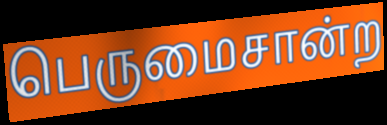
பெருமைசான்ற